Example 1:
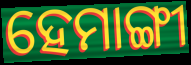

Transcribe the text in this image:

ହେମାଙ୍ଗୀ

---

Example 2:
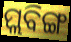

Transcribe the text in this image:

ପ୍ଲବିଙ୍ଗ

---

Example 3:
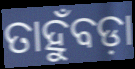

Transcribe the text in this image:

ତାହୁଁବଡ଼ା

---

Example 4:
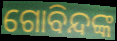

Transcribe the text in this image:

ଗୋବିନ୍ଦଙ୍କ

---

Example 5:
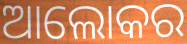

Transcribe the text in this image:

ଆଲୋକର